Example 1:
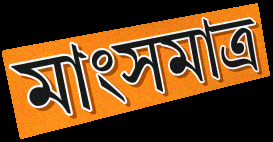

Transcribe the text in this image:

মাংসমাত্র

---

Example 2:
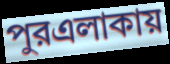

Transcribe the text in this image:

পুরএলাকায়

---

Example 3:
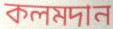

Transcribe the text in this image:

কলমদান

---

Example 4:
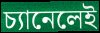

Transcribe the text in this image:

চ্যানেলেই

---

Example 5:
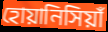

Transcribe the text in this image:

হোয়ানিসিয়াঁ